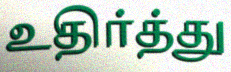
உதிர்த்து